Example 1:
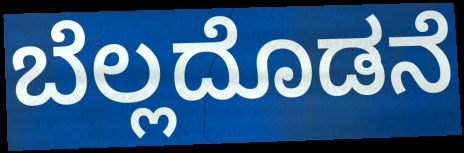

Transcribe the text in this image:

ಬೆಲ್ಲದೊಡನೆ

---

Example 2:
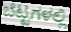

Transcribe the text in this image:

ಬೆಟ್ಟಗಳಲ್ಲಿ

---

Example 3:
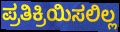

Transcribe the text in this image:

ಪ್ರತಿಕ್ರಿಯಿಸಲಿಲ್ಲ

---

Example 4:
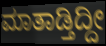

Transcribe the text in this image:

ಮಾತಾಡ್ತಿದ್ದೀ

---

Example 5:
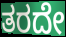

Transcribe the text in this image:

ತರದೇ